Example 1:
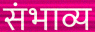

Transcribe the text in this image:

संभाव्य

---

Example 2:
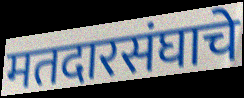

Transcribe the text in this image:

मतदारसंघाचे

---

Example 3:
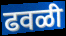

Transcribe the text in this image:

ढवळी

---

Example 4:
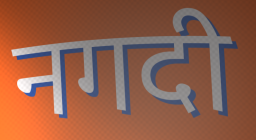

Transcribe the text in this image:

नगदी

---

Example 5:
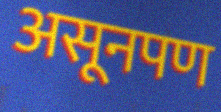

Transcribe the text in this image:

असूनपण